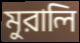
মুরালি